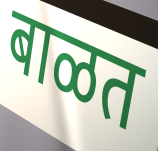
बाळत